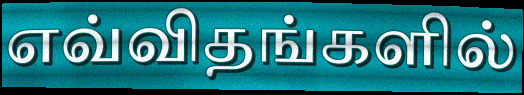
எவ்விதங்களில்